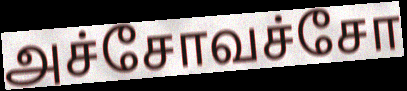
அச்சோவச்சோ